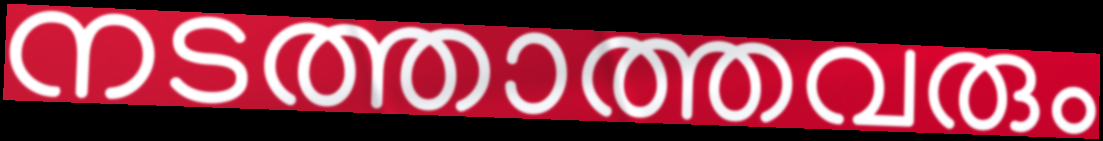
നടത്താത്തവരും